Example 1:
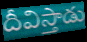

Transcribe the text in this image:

దీవిస్తాడు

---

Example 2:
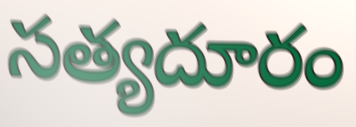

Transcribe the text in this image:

సత్యదూరం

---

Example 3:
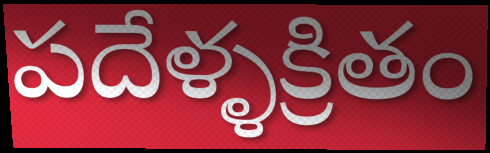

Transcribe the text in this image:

పదేళ్ళక్రితం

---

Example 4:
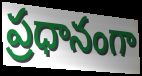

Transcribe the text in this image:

ప్రధానంగా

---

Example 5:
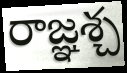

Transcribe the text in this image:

రాజ్ఞశ్చ